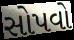
સોપવો